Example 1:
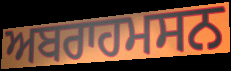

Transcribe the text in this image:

ਅਬਰਾਹਮਸਨ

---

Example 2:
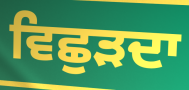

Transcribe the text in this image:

ਵਿਛੁੜਦਾ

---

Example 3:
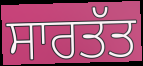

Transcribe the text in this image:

ਸਾਰਤੱਤ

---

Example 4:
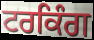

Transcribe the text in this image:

ਟਰਕਿੰਗ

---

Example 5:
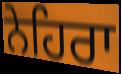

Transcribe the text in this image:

ਨੇਹਿਰਾ